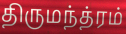
திருமந்த்ரம்